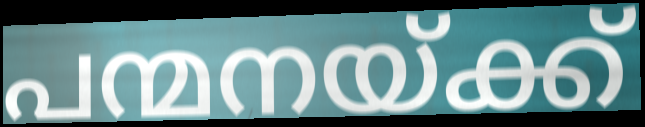
പന്മനയ്ക്ക്